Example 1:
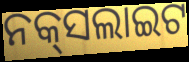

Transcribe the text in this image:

ନକ୍‌ସଲାଇଟ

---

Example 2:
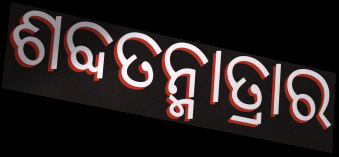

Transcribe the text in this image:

ଶବ୍ଦତନ୍ମାତ୍ରାର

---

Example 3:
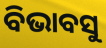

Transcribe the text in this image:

ବିଭାବସୁ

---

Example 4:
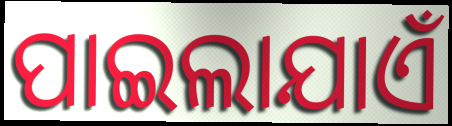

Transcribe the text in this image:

ପାଇଲାଯାଏଁ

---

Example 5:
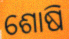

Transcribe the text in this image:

ଶୋଷି